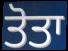
ਤੋਤਾ